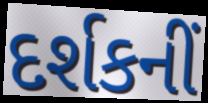
દર્શકનીં